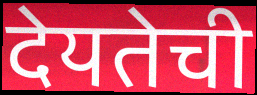
देयतेची